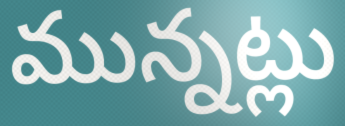
మున్నట్లు